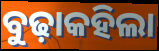
ବୁଢ଼ାକହିଲା